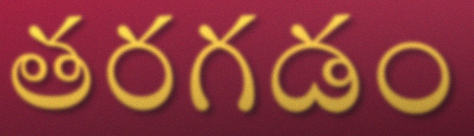
తరగడం